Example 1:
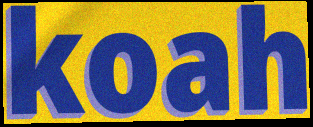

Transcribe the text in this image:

koah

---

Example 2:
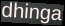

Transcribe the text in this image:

dhinga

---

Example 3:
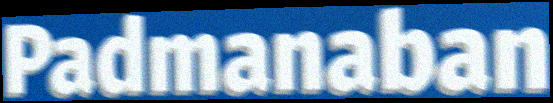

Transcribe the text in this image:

Padmanaban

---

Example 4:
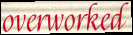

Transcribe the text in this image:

overworked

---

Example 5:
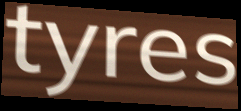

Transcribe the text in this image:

tyres